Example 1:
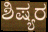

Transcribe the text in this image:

ಶಿಷ್ಯರ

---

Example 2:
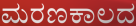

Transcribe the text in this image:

ಮರಣಕಾಲದ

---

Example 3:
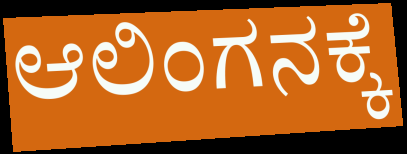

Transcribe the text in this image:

ಆಲಿಂಗನಕ್ಕೆ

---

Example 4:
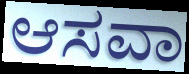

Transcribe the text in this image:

ಆಸವಾ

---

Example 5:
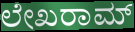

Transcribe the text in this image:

ಲೇಖರಾಮ್